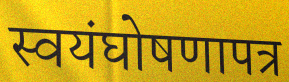
स्वयंघोषणापत्र